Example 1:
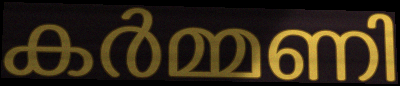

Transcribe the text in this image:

കർമ്മണി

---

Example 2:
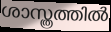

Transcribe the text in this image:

ശാസ്ത്രത്തിൽ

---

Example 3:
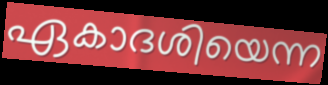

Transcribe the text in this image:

ഏകാദശിയെന്ന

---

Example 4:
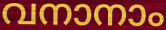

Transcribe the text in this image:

വനാനാം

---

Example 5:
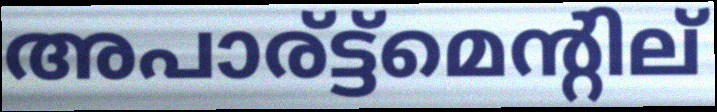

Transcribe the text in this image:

അപാര്ട്ട്മെന്റില്